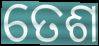
ତେଶ